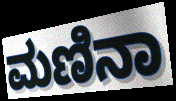
ಮಣಿನಾ